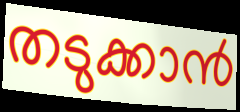
തടുക്കാൻ